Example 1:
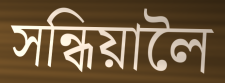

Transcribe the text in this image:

সন্ধিয়ালৈ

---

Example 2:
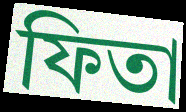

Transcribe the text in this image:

ফিতা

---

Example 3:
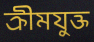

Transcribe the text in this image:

ক্ৰীমযুক্ত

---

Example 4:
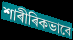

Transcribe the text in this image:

শাৰীৰিকভাবে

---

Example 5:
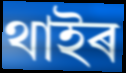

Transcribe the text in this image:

থাইৰ